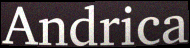
Andrica